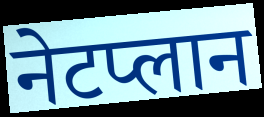
नेटप्लान